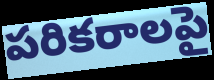
పరికరాలపై